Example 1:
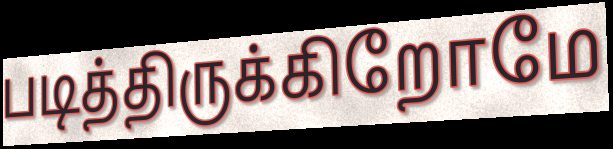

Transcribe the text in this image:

படித்திருக்கிறோமே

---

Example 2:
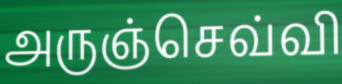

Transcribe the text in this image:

அருஞ்செவ்வி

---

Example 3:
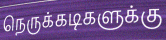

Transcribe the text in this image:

நெருக்கடிகளுக்கு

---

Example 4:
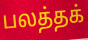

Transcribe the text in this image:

பலத்தக்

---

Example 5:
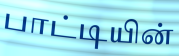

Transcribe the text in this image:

பாட்டியின்